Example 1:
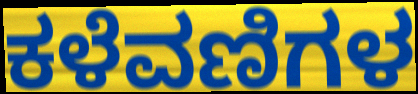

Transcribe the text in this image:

ಕಳೆವಣಿಗಳ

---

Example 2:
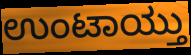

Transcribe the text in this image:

ಉಂಟಾಯ್ತು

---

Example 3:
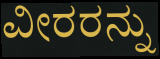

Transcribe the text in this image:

ವೀರರನ್ನು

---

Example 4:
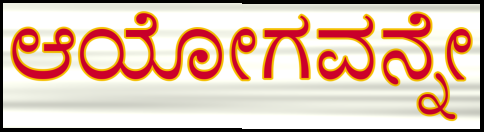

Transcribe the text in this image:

ಆಯೋಗವನ್ನೇ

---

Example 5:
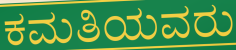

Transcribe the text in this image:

ಕಮತಿಯವರು